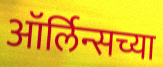
ऑर्लिन्सच्या